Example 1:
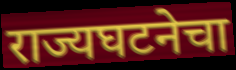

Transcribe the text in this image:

राज्यघटनेचा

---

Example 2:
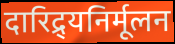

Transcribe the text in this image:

दारिद्र्यनिर्मूलन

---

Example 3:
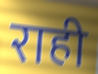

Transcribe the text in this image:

राही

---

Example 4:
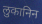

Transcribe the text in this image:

लुकानिन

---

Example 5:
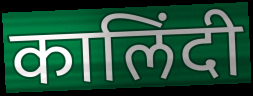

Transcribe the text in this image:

कालिंदी